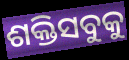
ଶକ୍ତିସବୁକୁ